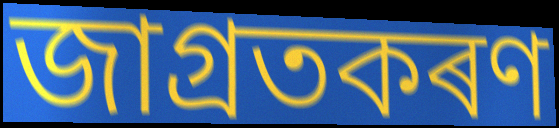
জাগ্ৰতকৰণ